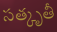
సత్కృతీ